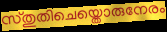
സ്തുതിചെയ്തൊരുനേരം